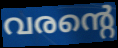
വരന്റെ